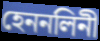
হেননলিনী